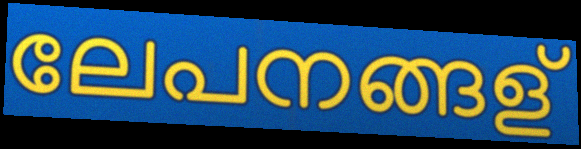
ലേപനങ്ങള്